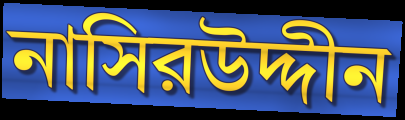
নাসিরউদ্দীন